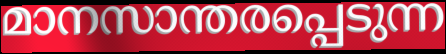
മാനസാന്തരപ്പെടുന്ന